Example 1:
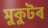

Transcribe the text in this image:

মুকুটৰ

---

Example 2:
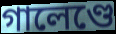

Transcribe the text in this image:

গালেণ্ডে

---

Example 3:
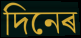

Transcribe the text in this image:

দিনেৰ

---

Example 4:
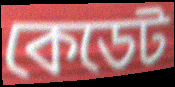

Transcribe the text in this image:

কেডেট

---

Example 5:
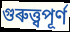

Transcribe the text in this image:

গুৰুত্ত্বপূৰ্ণ